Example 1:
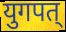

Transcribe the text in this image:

युगपत्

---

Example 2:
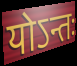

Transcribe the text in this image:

योऽन्तः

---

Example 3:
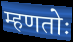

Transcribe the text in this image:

म्हणतोः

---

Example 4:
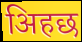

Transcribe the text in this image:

अिहछ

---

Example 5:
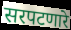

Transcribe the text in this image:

सरपटणारे